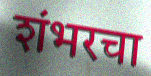
शंभरचा